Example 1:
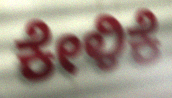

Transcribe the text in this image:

ಕೇಳಿಕೆ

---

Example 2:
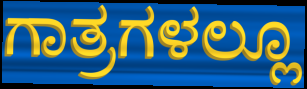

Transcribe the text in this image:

ಗಾತ್ರಗಳಲ್ಲೂ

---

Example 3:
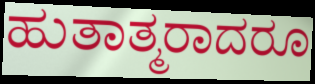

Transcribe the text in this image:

ಹುತಾತ್ಮರಾದರೂ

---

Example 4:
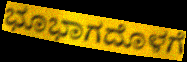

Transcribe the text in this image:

ಭೂಭಾಗದೊಳಗೆ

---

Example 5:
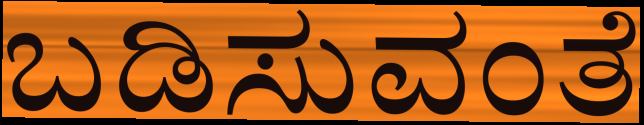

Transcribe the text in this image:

ಬಡಿಸುವಂತೆ